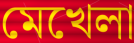
মেখেলা